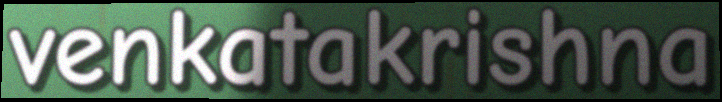
venkatakrishna